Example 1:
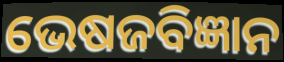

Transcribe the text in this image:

ଭେଷଜବିଜ୍ଞାନ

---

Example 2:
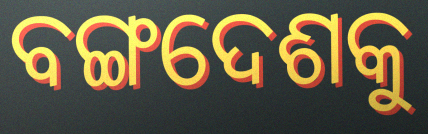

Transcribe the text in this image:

ବଙ୍ଗଦେଶକୁ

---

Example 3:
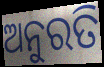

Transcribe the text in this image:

ଅନୁରତି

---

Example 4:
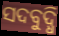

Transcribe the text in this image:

ସଦବୁଦ୍ଧି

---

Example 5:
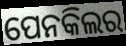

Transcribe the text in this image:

ପେନକିଲର